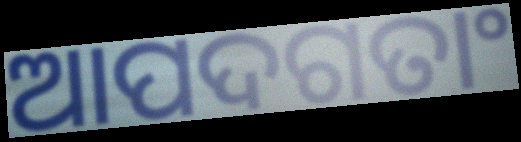
ଆପଦଗତାଂ